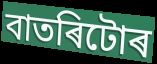
বাতৰিটোৰ